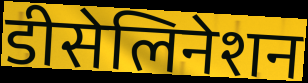
डीसेलिनेशन